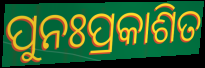
ପୁନଃପ୍ରକାଶିତ